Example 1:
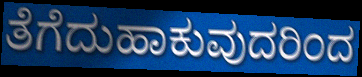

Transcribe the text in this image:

ತೆಗೆದುಹಾಕುವುದರಿಂದ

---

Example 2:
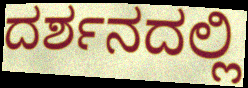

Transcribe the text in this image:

ದರ್ಶನದಲ್ಲಿ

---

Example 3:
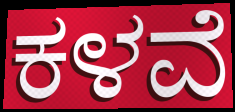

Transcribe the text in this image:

ಕಳವೆ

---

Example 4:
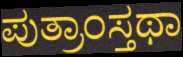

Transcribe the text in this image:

ಪುತ್ರಾಂಸ್ತಥಾ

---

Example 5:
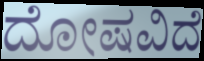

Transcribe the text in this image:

ದೋಷವಿದೆ